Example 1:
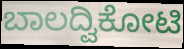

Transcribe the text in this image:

ಬಾಲದ್ವಿಕೋಟಿ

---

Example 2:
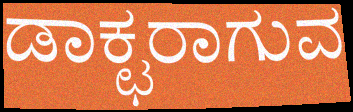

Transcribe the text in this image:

ಡಾಕ್ಟರಾಗುವ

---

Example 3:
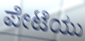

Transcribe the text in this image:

ಪೇಟೆಯು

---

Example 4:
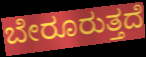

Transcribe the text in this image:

ಬೇರೂರುತ್ತದೆ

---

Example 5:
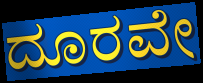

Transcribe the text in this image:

ದೂರವೇ